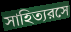
সাহিত্যরসে